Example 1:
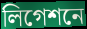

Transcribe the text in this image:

লিগেশনে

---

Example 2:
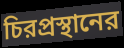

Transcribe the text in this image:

চিরপ্রস্থানের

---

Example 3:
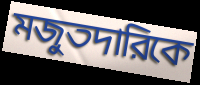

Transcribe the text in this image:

মজুতদারিকে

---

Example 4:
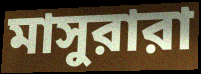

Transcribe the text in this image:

মাসুরারা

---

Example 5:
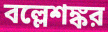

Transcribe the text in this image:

বল্লেশঙ্কর